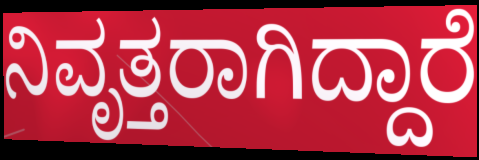
ನಿವೃತ್ತರಾಗಿದ್ದಾರೆ